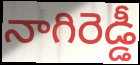
నాగిరెడ్డీ